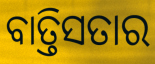
ବାତ୍ତିସତାର